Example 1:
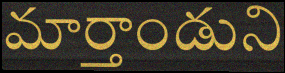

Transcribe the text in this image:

మార్తాండుని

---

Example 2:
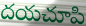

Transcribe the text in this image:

దయచూపి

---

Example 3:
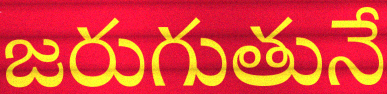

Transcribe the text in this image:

జరుగుతునే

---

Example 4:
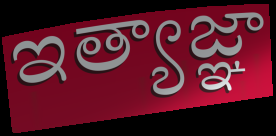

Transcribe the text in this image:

ఇత్యాజ్ఞా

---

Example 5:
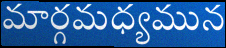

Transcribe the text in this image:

మార్గమధ్యమున